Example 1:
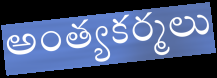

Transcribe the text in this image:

అంత్యకర్మలు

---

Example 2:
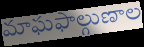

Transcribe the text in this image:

మాఘఫాల్గుణాల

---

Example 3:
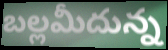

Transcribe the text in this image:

బల్లమీదున్న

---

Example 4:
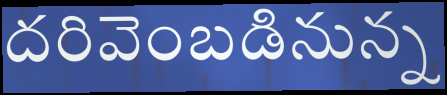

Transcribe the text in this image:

దరివెంబడినున్న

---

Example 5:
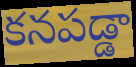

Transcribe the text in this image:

కనపడ్డా